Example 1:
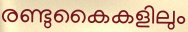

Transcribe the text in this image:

രണ്ടുകൈകളിലും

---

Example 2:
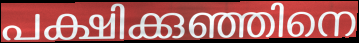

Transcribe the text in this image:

പക്ഷിക്കുഞ്ഞിനെ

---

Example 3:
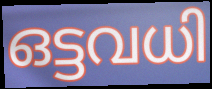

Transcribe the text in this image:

ഒട്ടവധി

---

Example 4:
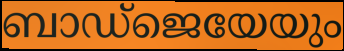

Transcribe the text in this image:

ബാഡ്ജെയേയും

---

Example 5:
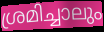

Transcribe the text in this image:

ശ്രമിച്ചാലും